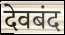
देवबंद